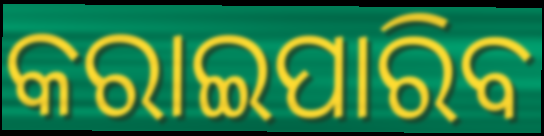
କରାଇପାରିବ